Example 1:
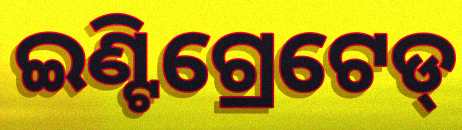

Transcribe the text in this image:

ଇଣ୍ଟିଗ୍ରେଟେଡ୍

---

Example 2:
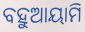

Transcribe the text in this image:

ବହୁଆୟାମି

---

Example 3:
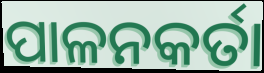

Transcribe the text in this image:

ପାଳନକର୍ତା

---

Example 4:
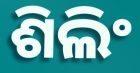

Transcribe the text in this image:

ଶିଲିଂ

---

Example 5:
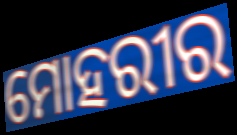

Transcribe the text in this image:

ମୋହରୀର